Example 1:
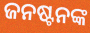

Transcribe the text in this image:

ଜନଷ୍ଟନଙ୍କ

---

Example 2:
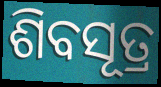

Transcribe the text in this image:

ଶିବସୂତ୍ର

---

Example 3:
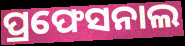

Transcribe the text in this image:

ପ୍ରଫେସନାଲ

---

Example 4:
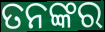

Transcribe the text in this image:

ତନଙ୍କର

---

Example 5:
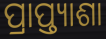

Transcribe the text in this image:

ପ୍ରାପ୍ତ୍ୟାଶା